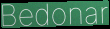
Bedonar